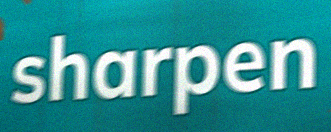
sharpen